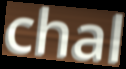
chal